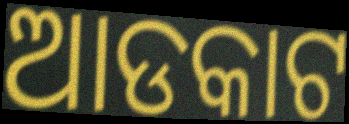
ଆଡକାଟ